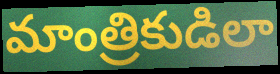
మాంత్రికుడిలా